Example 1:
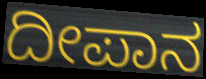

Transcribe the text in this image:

ದೀಪಾನ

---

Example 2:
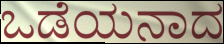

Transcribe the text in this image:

ಒಡೆಯನಾದ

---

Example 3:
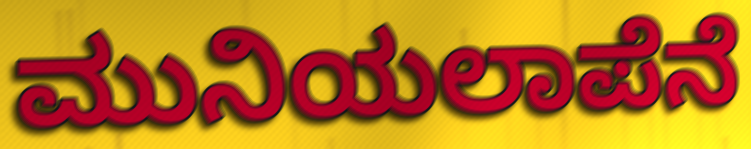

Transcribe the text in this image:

ಮುನಿಯಲಾಪೆನೆ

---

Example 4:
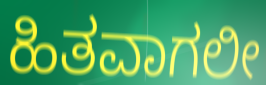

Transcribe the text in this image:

ಹಿತವಾಗಲೀ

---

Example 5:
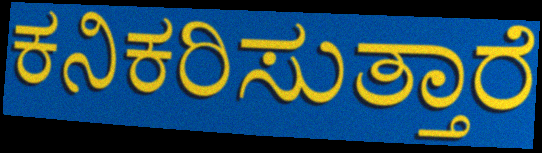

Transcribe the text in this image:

ಕನಿಕರಿಸುತ್ತಾರೆ